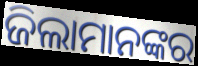
ଜିଲାମାନଙ୍କର